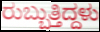
ರುಬ್ಬುತ್ತಿದ್ದಳು